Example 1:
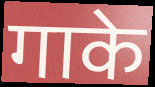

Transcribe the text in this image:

गाके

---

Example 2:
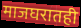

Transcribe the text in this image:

माजघरातही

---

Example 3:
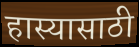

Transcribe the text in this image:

हास्यासाठी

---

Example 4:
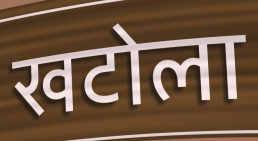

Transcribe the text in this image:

खटोला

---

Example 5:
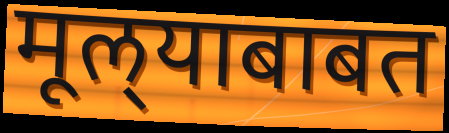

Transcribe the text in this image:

मूल्याबाबत